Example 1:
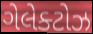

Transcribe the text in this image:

ગેલેક્ટોઝ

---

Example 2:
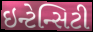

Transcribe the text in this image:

ઇન્ટેન્સિટી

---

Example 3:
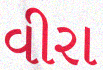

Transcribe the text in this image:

વીરા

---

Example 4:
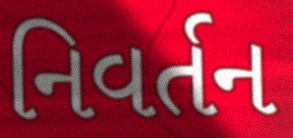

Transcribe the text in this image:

નિવર્તન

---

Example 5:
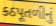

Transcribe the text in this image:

કઠપૂતળીનું